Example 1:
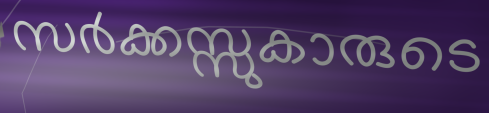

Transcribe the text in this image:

സർക്കസ്സുകാരുടെ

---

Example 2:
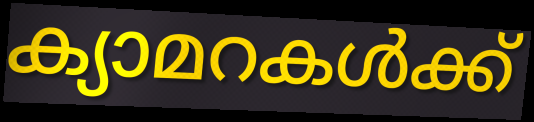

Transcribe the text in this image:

ക്യാമറകൾക്ക്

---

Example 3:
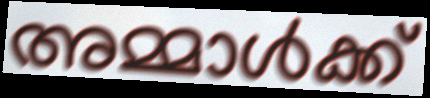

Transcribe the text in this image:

അമ്മാൾക്ക്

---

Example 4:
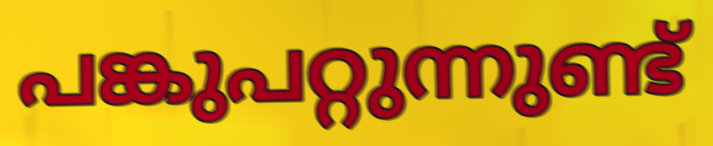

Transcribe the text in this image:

പങ്കുപറ്റുന്നുണ്ട്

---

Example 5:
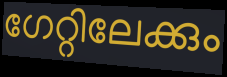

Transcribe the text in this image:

ഗേറ്റിലേക്കും